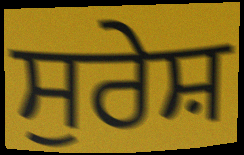
ਸੁਰੇਸ਼